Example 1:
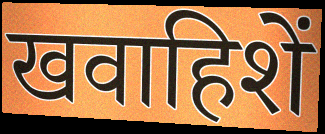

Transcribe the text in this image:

खवाहिशें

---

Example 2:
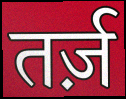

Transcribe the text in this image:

तर्ज़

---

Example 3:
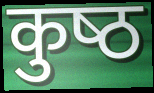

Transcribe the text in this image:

कुष्‍ठ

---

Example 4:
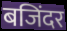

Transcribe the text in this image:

बजिंदर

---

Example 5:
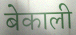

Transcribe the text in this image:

बेकाली